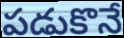
పడుకొనే